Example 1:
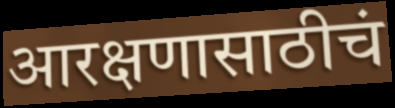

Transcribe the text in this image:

आरक्षणासाठीचं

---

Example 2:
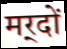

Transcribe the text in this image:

मर्दों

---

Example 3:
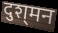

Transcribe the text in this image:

दुश्मन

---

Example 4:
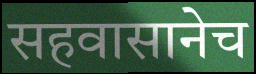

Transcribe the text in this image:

सहवासानेच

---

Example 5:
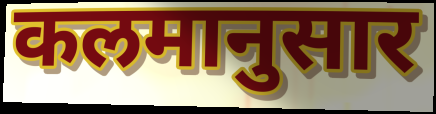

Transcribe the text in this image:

कलमानुसार